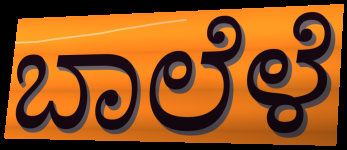
ಬಾಲೆಳೆ